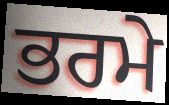
ਭਰਮੇ